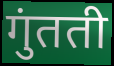
गुंतती